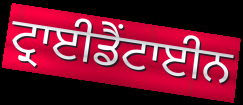
ਟ੍ਰਾਈਡੈਂਟਾਈਨ